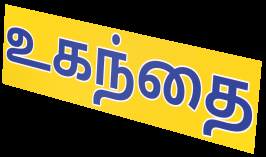
உகந்தை